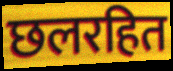
छलरहित